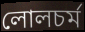
লোলচর্ম